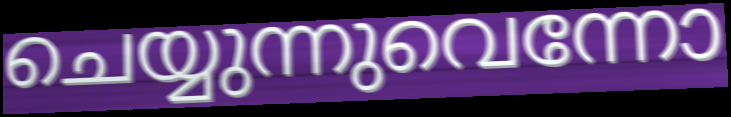
ചെയ്യുന്നുവെന്നോ